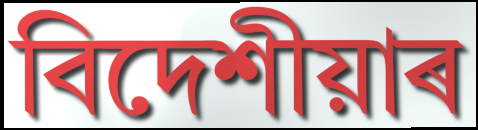
বিদেশীয়াৰ